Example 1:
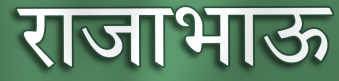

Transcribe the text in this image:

राजाभाऊ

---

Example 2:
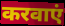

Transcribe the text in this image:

करवाएं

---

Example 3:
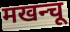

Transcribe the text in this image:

मखन्चू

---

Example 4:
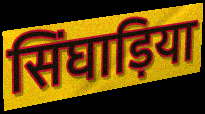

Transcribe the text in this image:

सिंघाड़िया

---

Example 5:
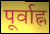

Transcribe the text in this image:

पूर्वाह्न